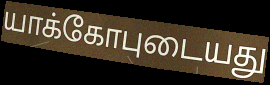
யாக்கோபுடையது